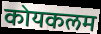
कोयकलम